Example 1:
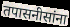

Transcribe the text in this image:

तपासनीसांना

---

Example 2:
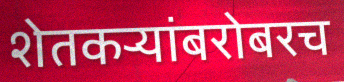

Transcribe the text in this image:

शेतकऱ्यांबरोबरच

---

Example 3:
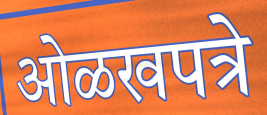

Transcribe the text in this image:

ओळखपत्रे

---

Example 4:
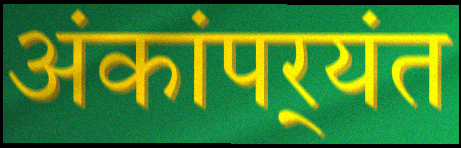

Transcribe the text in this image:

अंकांपर्यंत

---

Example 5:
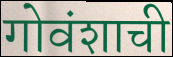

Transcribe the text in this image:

गोवंशाची